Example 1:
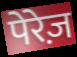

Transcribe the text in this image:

पेरेज़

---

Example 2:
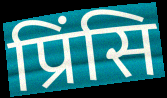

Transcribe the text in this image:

प्रिंसि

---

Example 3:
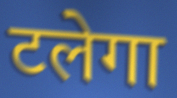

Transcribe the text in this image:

टलेगा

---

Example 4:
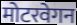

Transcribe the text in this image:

मोटरवेगन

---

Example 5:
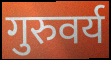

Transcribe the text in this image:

गुरुवर्य